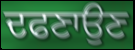
ਦਫਣਾਉਣ